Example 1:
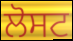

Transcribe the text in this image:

ਲੋਸਟ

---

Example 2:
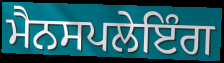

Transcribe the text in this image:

ਮੈਨਸਪਲੇਇੰਗ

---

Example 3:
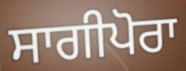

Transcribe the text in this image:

ਸਾਗੀਪੋਰਾ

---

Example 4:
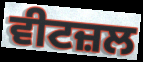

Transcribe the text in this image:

ਵੀਟਜ਼ਲ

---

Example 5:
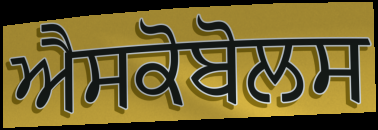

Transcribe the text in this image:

ਐਸਕੋਬੋਲਸ